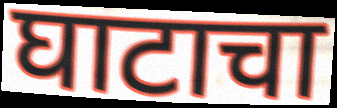
घाटाचा